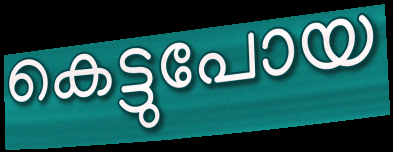
കെട്ടുപോയ